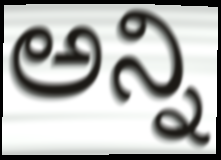
ಅನ್ನಿ